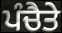
ਪੰਚੈਤੇ